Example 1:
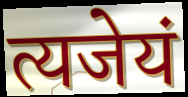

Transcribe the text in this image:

त्यजेयं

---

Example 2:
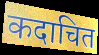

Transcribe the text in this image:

कदाचित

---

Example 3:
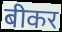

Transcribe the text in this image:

बीकर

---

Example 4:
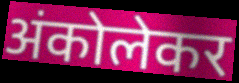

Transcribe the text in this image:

अंकोलेकर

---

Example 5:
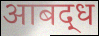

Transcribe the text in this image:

आबद्ध